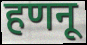
हणनू